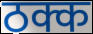
ठक्क